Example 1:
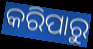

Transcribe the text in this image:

କରିପାରୁ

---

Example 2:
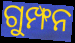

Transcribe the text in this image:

ଗୁମ୍ଫନ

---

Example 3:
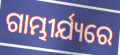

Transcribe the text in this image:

ଗାମ୍ଭୀର୍ଯ୍ୟରେ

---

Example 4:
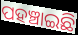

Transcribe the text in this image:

ପହଞ୍ଚାଇଛି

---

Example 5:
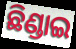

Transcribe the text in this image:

ଛିଣ୍ଡାଇ